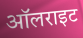
ऑलराइट